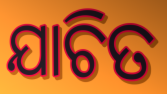
ଯାଚିତ